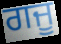
ਗਜੂ